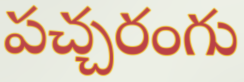
పచ్చరంగు